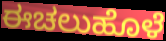
ಈಚಲುಹೊಳೆ